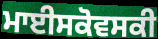
ਮਾਈਸਕੋਵਸਕੀ